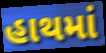
હાથમાં